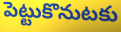
పెట్టుకొనుటకు